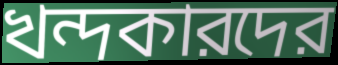
খন্দকারদের